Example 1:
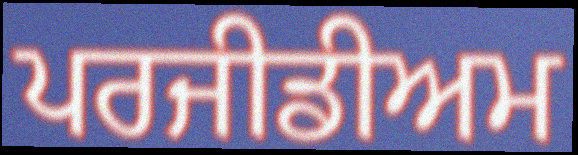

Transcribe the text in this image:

ਪਰਜੀਡੀਅਮ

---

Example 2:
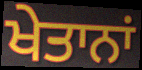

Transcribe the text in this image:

ਖੇਤਾਨਾਂ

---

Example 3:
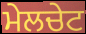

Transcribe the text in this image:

ਮੇਲਚੇਟ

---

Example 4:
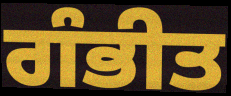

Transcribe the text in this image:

ਗੰਭੀਤ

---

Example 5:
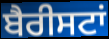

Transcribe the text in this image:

ਬੈਰੀਸਟਾਂ